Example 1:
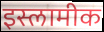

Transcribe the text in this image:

इस्लामीक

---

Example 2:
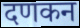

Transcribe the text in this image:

दणकन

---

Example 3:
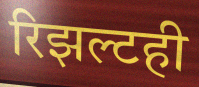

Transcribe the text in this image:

रिझल्टही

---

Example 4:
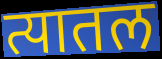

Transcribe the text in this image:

त्यातल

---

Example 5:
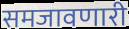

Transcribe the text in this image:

समजावणारी